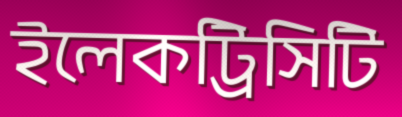
ইলেকট্রিসিটি